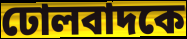
ঢোলবাদকে